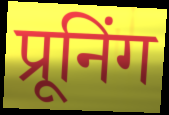
प्रूनिंग